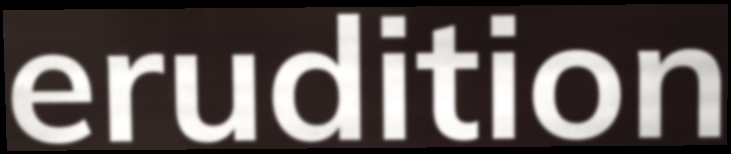
erudition